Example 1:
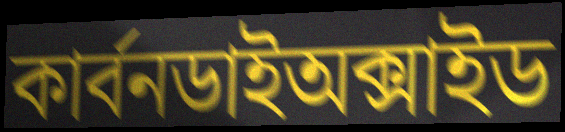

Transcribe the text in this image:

কার্বনডাইঅক্সাইড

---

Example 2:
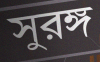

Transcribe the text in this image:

সুরঙ্গ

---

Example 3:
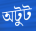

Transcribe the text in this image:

অটুট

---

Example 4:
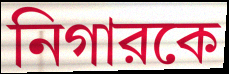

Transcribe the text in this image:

নিগারকে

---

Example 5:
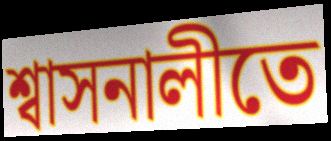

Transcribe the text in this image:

শ্বাসনালীতে